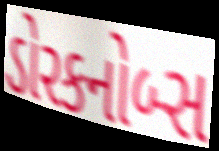
ડોરકનોબ્સ